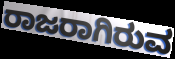
ರಾಜರಾಗಿರುವ